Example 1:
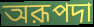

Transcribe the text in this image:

অরূপদা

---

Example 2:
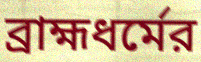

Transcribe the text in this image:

ব্রাহ্মধর্মের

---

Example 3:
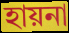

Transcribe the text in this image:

হায়না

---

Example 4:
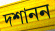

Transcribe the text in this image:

দশানন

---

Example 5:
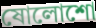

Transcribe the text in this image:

ষোলোশো